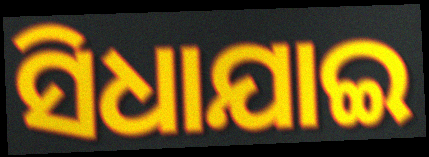
ସିଧାଯାଇ